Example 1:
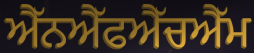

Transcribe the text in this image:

ਐੱਨਐੱਫਐੱਚਐੱਮ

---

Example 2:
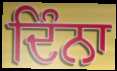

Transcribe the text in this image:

ਦਿੰਨਾ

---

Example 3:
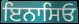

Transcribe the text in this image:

ਇਨਾਸਿਓ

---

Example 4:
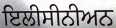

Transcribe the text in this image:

ਇਲੀਸੀਨੀਅਨ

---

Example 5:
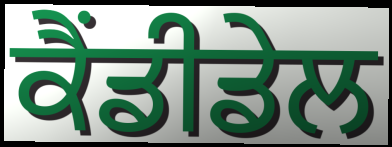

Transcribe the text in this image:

ਕੈਂਡੀਡੇਲ